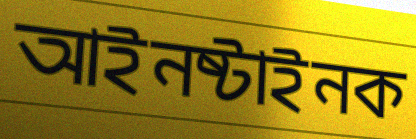
আইনষ্টাইনক